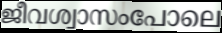
ജീവശ്വാസംപോലെ